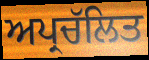
ਅਪ੍ਰਚੱਲਿਤ